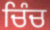
ਚਿੰਚ